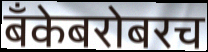
बँकेबरोबरच